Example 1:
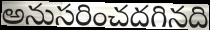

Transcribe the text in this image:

అనుసరించదగినది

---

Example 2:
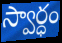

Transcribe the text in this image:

స్వార్ధం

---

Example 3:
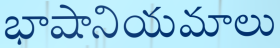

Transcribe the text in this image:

భాషానియమాలు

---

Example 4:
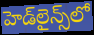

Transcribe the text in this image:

హెడ్‌లైన్స్‌లో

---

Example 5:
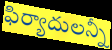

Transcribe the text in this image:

ఫిర్యాదులన్నీ